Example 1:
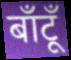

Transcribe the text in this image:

बाँटूँ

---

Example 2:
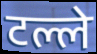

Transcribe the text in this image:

टल्ले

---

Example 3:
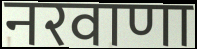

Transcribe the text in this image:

नरवाणा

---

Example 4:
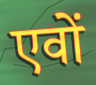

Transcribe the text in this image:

एवों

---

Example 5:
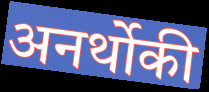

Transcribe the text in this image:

अनर्थोकी